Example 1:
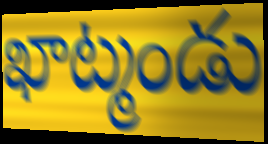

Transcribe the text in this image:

ఖాట్మండు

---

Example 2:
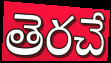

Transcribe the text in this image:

తెరచే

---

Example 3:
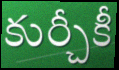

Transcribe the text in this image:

కుర్చీకీ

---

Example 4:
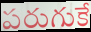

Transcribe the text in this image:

పరుగుకే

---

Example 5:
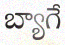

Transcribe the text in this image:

బ్యాగే